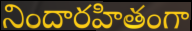
నిందారహితంగా